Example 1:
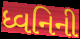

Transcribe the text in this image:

ધ્વનિની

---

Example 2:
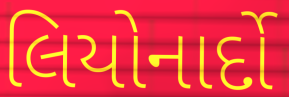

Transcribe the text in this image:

લિયોનાર્દો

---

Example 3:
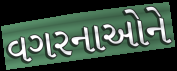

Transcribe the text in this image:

વગરનાઓને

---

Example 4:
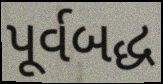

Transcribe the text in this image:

પૂર્વબદ્ધ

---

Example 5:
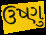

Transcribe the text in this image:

ઉષ્ણુ